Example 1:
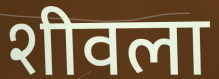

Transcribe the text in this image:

शीवला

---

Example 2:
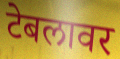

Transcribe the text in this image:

टेबलावर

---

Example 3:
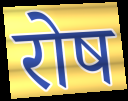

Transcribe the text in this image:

रोष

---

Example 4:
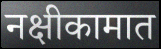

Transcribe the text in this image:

नक्षीकामात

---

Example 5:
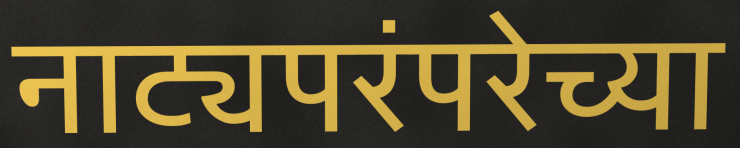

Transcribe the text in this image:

नाट्यपरंपरेच्या